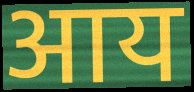
आय